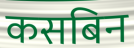
कसबिन